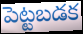
పెట్టబడక